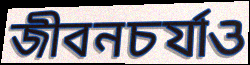
জীবনচর্যাও